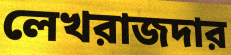
লেখরাজদার